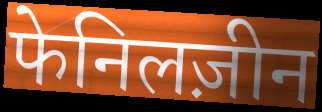
फेनिलज़ीन